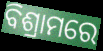
ବିଶ୍ରାମରେ